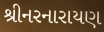
શ્રીનરનારાયણ